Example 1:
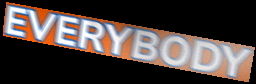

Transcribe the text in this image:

EVERYBODY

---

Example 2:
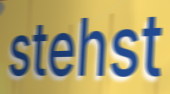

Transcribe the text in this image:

stehst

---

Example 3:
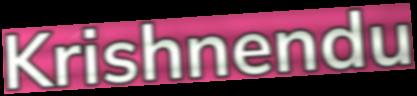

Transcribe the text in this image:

Krishnendu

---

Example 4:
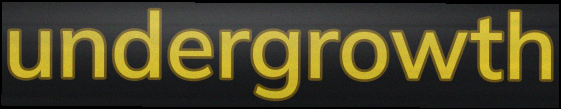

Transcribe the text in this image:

undergrowth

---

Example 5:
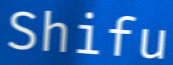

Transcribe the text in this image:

Shifu